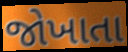
જોખાતા